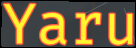
Yaru